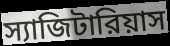
স্যাজিটারিয়াস